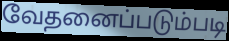
வேதனைப்படும்படி